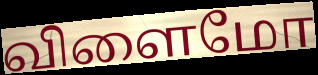
விளைமோ